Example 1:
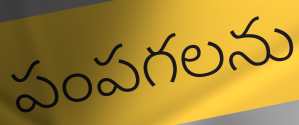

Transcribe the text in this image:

పంపగలను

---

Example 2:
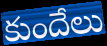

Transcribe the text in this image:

కుందేలు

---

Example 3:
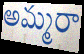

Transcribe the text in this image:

అమ్మరా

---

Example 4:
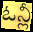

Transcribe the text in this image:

ఓన్లీ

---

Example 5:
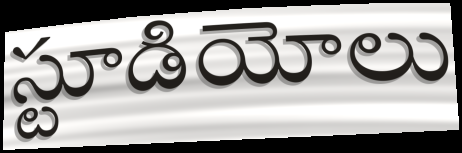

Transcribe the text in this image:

స్టూడియోలు